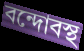
বন্দোবস্থ